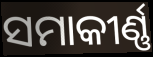
ସମାକୀର୍ଣ୍ଣ